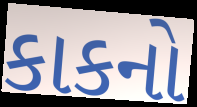
કાકનો